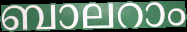
ബാലറാം